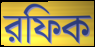
রফিক